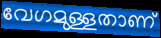
വേഗമുള്ളതാണ്